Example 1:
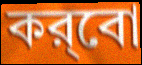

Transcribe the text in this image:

কর্‌বো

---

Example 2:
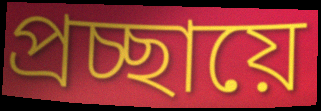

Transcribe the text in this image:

প্রচ্ছায়ে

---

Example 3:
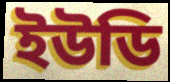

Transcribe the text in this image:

ইউডি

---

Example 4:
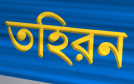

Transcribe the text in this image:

তহিরন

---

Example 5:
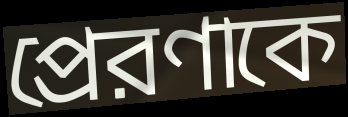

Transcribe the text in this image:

প্রেরণাকে